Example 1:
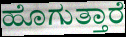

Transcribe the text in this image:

ಹೊಗುತ್ತಾರೆ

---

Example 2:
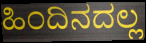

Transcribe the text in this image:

ಹಿಂದಿನದಲ್ಲ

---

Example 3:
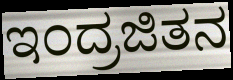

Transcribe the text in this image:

ಇಂದ್ರಜಿತನ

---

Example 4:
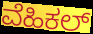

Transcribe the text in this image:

ವೆಹಿಕಲ್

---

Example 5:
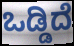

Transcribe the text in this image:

ಒಡ್ಡಿದೆ